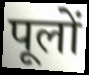
पूलों